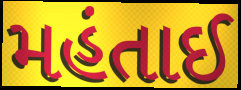
મહંતાઈ